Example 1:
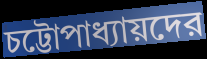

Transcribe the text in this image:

চট্টোপাধ্যায়দের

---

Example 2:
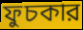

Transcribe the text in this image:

ফুচকার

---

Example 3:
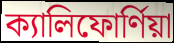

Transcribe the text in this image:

ক্যালিফোর্ণিয়া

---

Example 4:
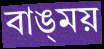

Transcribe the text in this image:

বাঙ্‌ময়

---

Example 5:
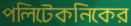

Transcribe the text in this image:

পলিটেকনিকের